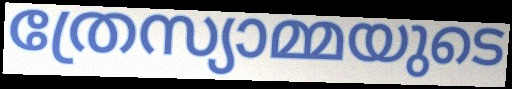
ത്രേസ്യാമ്മയുടെ